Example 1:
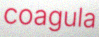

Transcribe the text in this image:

coagula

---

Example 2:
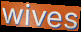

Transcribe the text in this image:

wives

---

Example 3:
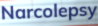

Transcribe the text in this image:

Narcolepsy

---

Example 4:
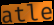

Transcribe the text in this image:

atle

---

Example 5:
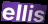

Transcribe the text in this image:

ellis